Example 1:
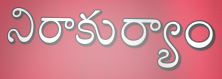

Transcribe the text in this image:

నిరాకుర్యాం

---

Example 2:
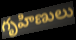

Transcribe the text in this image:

గృహిణులు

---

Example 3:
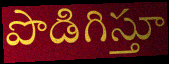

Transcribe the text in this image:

పొడిగిస్తూ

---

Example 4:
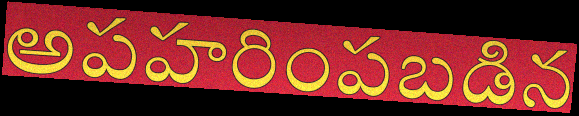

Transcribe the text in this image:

అపహరింపబడిన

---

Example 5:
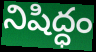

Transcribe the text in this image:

నిషిద్ధం